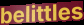
belittles